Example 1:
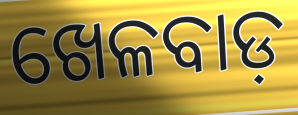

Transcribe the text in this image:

ଖେଳବାଡ଼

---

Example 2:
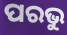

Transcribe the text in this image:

ପରଭୁ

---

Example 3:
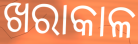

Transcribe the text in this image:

ଖରାକାଳ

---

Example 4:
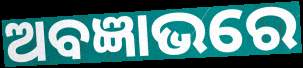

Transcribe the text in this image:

ଅବଜ୍ଞାଭରେ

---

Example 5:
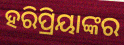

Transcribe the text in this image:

ହରିପ୍ରିୟାଙ୍କର